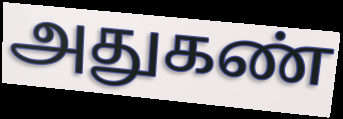
அதுகண்